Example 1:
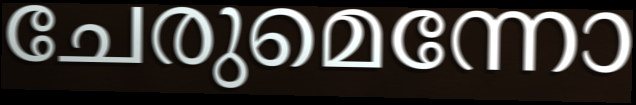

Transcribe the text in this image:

ചേരുമെന്നോ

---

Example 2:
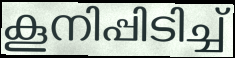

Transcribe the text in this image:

കൂനിപ്പിടിച്ച്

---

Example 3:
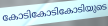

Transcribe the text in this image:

കോടികോടികോടിയുടെ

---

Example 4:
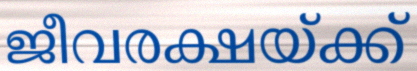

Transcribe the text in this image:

ജീവരക്ഷയ്ക്ക്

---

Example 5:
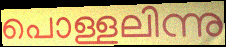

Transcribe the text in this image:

പൊള്ളലിന്നു